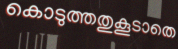
കൊടുത്തതുകൂടാതെ